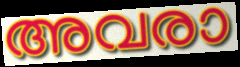
അവരാ